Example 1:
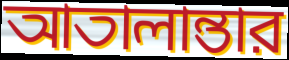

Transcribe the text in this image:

আতালান্তার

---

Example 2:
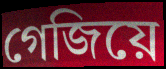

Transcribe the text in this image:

গেজিয়ে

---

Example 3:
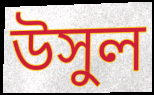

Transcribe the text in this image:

উসুল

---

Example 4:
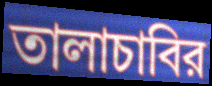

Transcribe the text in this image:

তালাচাবির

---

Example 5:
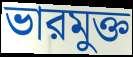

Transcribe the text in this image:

ভারমুক্ত